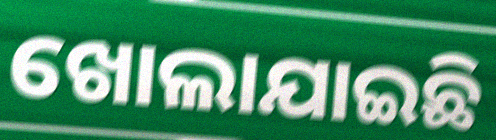
ଖୋଲାଯାଇଛି